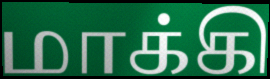
மாக்கி